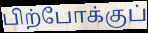
பிற்போக்குப்